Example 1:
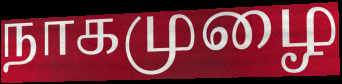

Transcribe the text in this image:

நாகமுழை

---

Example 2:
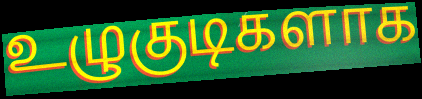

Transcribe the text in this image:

உழுகுடிகளாக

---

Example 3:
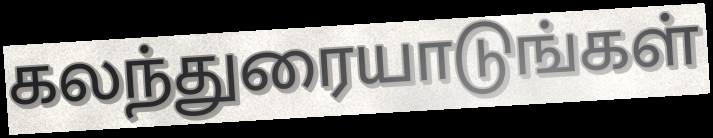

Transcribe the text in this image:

கலந்துரையாடுங்கள்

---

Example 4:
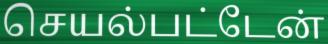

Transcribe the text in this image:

செயல்பட்டேன்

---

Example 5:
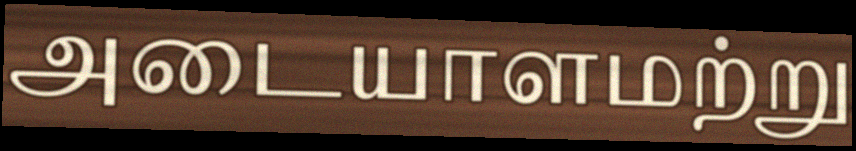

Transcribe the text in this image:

அடையாளமற்று